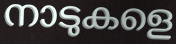
നാടുകളെ